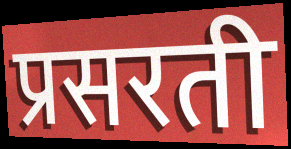
प्रसरती